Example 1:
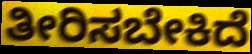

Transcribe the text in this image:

ತೀರಿಸಬೇಕಿದೆ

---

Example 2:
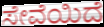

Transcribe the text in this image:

ಸೇವೆಯಿದೆ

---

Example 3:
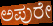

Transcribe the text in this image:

ಅಪುರೇ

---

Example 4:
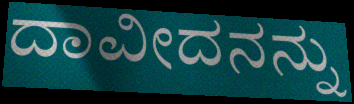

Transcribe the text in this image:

ದಾವೀದನನ್ನು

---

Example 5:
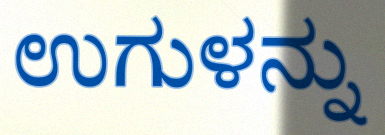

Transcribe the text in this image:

ಉಗುಳನ್ನು